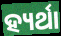
ହ୍ୟର୍ଥା